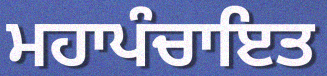
ਮਹਾਪੰਚਾਇਤ